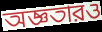
অজ্ঞতারও